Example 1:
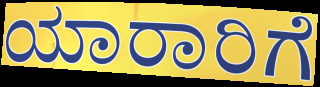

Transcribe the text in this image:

ಯಾರಾರಿಗೆ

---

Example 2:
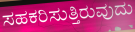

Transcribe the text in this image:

ಸಹಕರಿಸುತ್ತಿರುವುದು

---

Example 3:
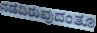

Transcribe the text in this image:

ನಡೆದಿರುವುದಂತೂ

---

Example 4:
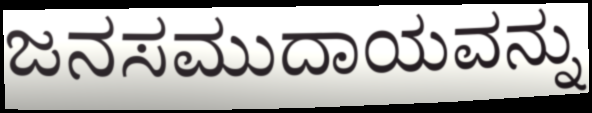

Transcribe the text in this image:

ಜನಸಮುದಾಯವನ್ನು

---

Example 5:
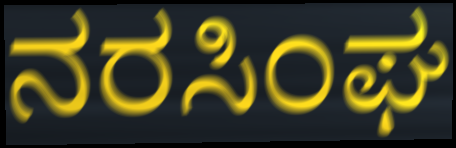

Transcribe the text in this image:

ನರಸಿಂಘ